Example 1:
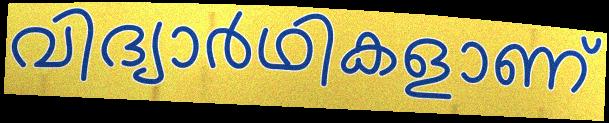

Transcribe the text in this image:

വിദ്യാർഥികളാണ്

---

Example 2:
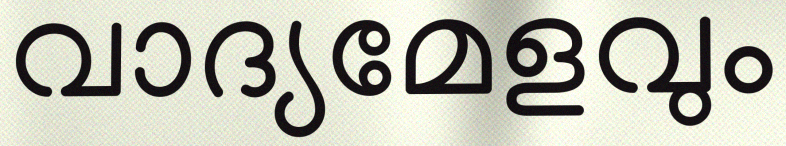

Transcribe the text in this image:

വാദ്യമേളവും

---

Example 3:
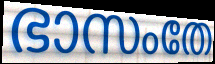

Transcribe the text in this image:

ഭാസംതേ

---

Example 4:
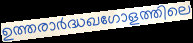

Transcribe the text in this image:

ഉത്തരാർദ്ധഖഗോളത്തിലെ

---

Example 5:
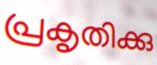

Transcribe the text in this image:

പ്രകൃതിക്കു